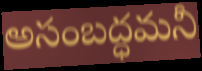
అసంబద్ధమనీ